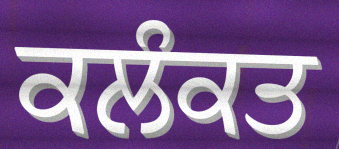
ਕਲੰਕਤ